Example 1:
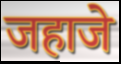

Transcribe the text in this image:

जहाजे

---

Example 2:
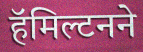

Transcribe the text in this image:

हॅमिल्टनने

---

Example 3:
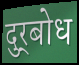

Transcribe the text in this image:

दुर्बोध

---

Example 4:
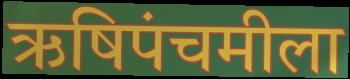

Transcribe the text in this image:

ऋषिपंचमीला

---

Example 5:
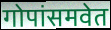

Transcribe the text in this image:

गोपांसमवेत